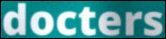
docters